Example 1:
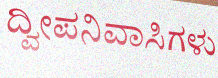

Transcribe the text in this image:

ದ್ವೀಪನಿವಾಸಿಗಳು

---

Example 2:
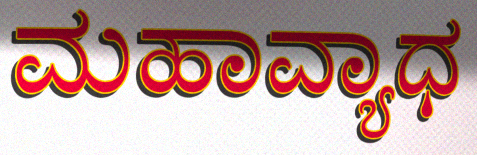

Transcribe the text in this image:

ಮಹಾವ್ಯಾಧ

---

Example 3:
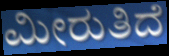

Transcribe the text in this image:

ಮೀರುತಿದೆ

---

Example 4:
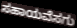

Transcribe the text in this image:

ಸಹಾಯವೆಸಗು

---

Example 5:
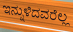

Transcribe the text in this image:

ಇನ್ನುಳಿದವರೆಲ್ಲ